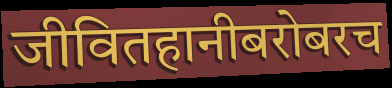
जीवितहानीबरोबरच